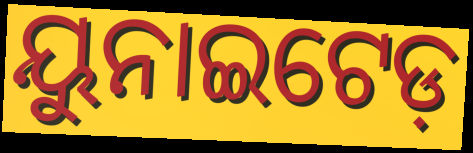
ୟୁନାଇଟେଡ଼